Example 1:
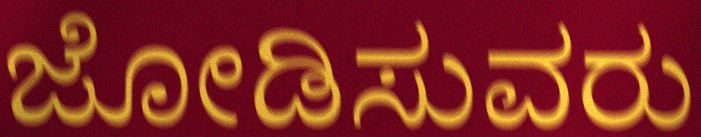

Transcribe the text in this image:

ಜೋಡಿಸುವರು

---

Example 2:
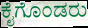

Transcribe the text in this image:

ಕೈಗೊಂಡರು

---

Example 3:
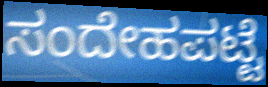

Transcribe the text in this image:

ಸಂದೇಹಪಟ್ಟೆ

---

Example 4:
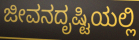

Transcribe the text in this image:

ಜೀವನದೃಷ್ಟಿಯಲ್ಲಿ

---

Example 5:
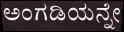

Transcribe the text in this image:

ಅಂಗಡಿಯನ್ನೇ